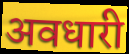
अवधारी